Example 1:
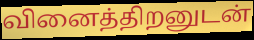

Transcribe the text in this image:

வினைத்திறனுடன்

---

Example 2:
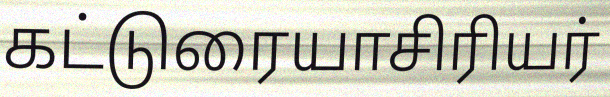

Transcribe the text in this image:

கட்டுரையாசிரியர்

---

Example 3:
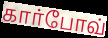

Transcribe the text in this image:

கார்போவ்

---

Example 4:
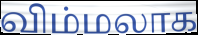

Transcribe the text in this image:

விம்மலாக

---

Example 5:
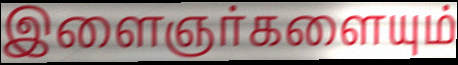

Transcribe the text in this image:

இளைஞர்களையும்